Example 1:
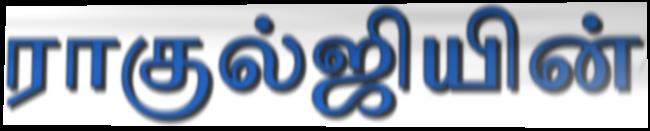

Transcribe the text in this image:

ராகுல்ஜியின்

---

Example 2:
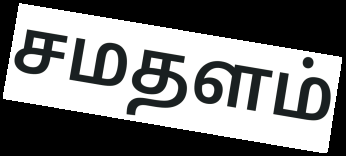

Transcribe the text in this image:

சமதளம்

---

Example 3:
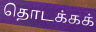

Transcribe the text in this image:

தொடக்கக்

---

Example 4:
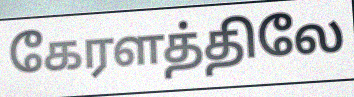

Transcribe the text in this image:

கேரளத்திலே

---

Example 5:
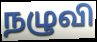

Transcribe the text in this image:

நழுவி